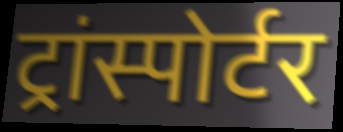
ट्रांस्पोर्टर